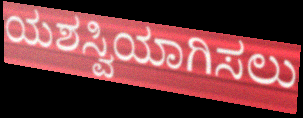
ಯಶಸ್ವಿಯಾಗಿಸಲು